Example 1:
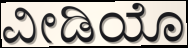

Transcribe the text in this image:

ವೀಡಿಯೊ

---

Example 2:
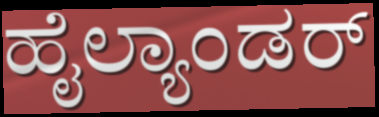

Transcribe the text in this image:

ಹೈಲ್ಯಾಂಡರ್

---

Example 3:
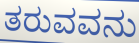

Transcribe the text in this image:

ತರುವವನು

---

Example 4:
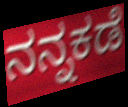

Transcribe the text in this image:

ನನ್ನಕಡೆ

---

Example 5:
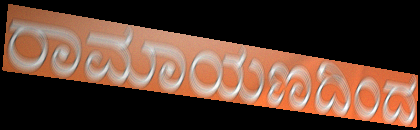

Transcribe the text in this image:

ರಾಮಾಯಣದಿಂದ